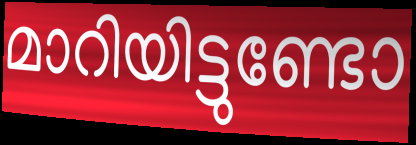
മാറിയിട്ടുണ്ടോ